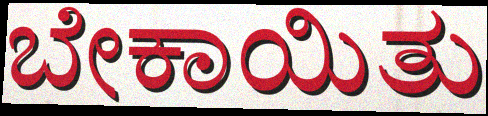
ಬೇಕಾಯಿತು